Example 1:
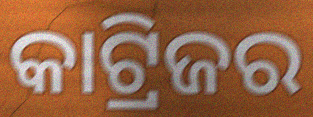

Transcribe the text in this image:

କାଟ୍ରିଜର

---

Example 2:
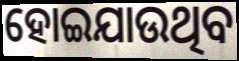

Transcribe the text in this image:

ହୋଇଯାଉଥିବ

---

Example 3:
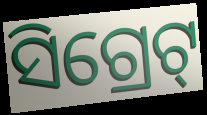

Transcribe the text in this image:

ସିଗ୍ରେଟ୍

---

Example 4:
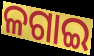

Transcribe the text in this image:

ଳଗାଇ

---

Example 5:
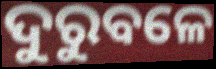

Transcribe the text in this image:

ଦୁରୁବଳେ